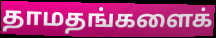
தாமதங்களைக்